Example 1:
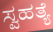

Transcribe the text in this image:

ಸ್ವಹತ್ಯೆ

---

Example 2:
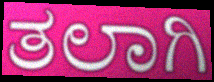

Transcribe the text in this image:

ತಲಾಗಿ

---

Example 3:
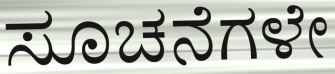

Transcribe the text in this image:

ಸೂಚನೆಗಳೇ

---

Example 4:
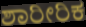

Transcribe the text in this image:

ಶಾರೀರಿಕ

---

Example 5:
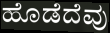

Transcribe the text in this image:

ಹೊಡೆದೆವು